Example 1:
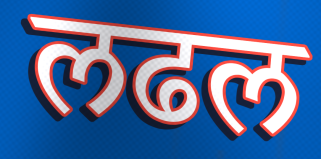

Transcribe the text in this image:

लढल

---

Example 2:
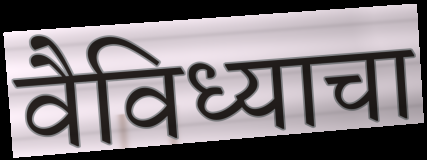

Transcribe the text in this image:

वैविध्याचा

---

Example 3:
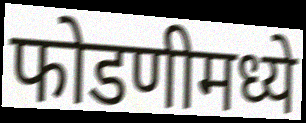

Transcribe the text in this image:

फोडणीमध्ये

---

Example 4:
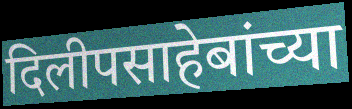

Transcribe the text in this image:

दिलीपसाहेबांच्या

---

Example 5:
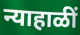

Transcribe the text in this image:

न्याहाळीं